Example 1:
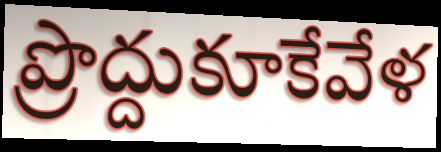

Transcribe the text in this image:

ప్రొద్దుకూకేవేళ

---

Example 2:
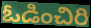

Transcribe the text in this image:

ఓడించిరి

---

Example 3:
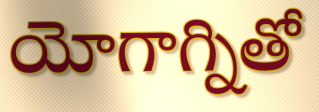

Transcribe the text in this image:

యోగాగ్నితో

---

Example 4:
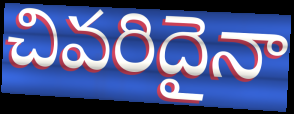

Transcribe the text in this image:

చివరిదైనా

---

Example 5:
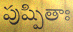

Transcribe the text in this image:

పుష్పితాః